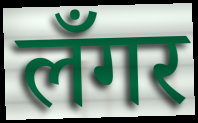
लँगर